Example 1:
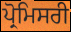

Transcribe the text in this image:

ਪ੍ਰੋਮਿਸਰੀ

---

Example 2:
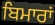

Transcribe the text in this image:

ਬਿਮਾਰਾਂ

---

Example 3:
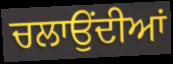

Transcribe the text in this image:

ਚਲਾਉਂਦੀਆਂ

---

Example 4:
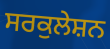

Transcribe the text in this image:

ਸਰਕੁਲੇਸ਼ਨ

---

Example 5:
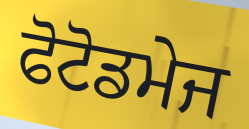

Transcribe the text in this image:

ਫੋਟੋਡਮੇਜ